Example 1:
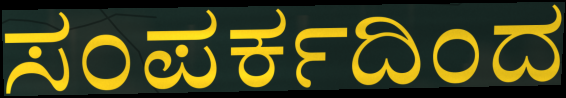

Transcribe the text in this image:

ಸಂಪರ್ಕದಿಂದ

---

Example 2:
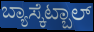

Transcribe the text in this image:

ಬ್ಯಾಸ್ಕೆಟ್ಬಾಲ್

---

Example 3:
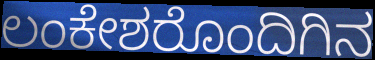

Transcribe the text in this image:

ಲಂಕೇಶರೊಂದಿಗಿನ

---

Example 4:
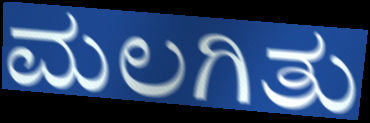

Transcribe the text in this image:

ಮಲಗಿತು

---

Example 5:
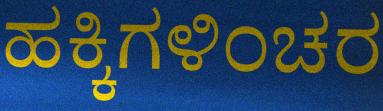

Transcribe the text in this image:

ಹಕ್ಕಿಗಳಿಂಚರ